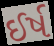
ઈર્ષ